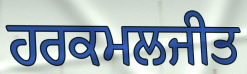
ਹਰਕਮਲਜੀਤ